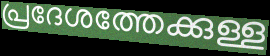
പ്രദേശത്തേക്കുള്ള